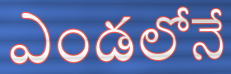
ఎండలోనే